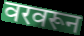
वरवरून